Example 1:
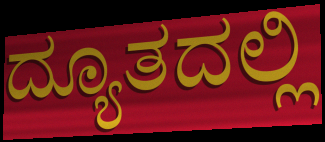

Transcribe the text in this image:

ದ್ಯೂತದಲ್ಲಿ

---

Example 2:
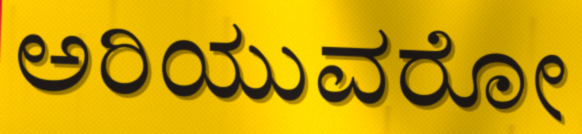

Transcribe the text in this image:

ಅರಿಯುವರೋ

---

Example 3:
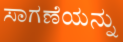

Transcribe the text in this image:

ಸಾಗಣೆಯನ್ನು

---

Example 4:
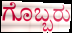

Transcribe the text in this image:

ಗೊಬ್ಬರು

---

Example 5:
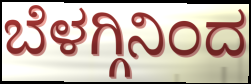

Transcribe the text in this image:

ಬೆಳಗ್ಗಿನಿಂದ